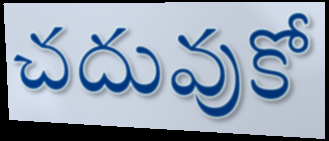
చదువుకో